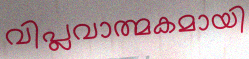
വിപ്ലവാത്മകമായി